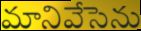
మానివేసెను